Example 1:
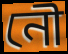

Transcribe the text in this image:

নৌ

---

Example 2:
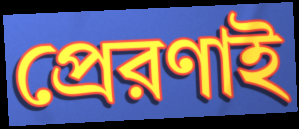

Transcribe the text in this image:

প্রেরণাই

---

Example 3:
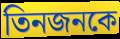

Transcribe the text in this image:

তিনজনকে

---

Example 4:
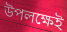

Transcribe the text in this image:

উপলক্ষেই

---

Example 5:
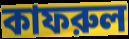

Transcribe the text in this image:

কাফরুল